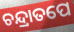
ଚନ୍ଦ୍ରାତପେ